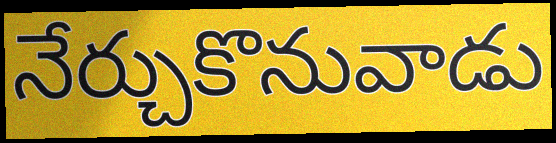
నేర్చుకొనువాడు